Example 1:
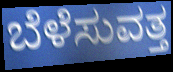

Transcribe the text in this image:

ಬೆಳೆಸುವತ್ತ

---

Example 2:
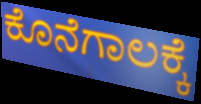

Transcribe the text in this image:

ಕೊನೆಗಾಲಕ್ಕೆ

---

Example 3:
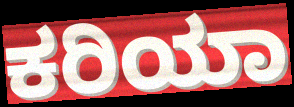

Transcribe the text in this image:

ಕರಿಯಾ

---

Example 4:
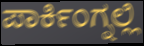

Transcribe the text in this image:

ಪಾರ್ಕಿಂಗ್ನಲ್ಲಿ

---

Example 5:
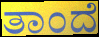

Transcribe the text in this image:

ತಾಂದೆ